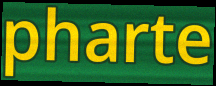
pharte